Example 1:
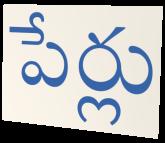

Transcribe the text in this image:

పేర్లు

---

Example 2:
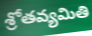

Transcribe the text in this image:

శ్రోతవ్యమితి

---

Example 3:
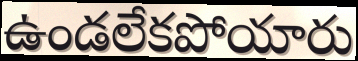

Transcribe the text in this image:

ఉండలేకపోయారు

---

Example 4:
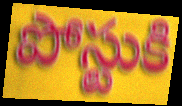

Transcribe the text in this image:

పోస్టుకి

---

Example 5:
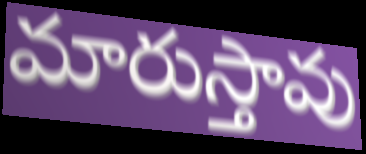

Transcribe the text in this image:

మారుస్తావు